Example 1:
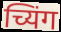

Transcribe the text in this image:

च्यिंग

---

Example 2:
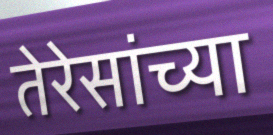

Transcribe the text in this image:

तेरेसांच्या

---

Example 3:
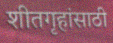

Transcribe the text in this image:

शीतगृहांसाठी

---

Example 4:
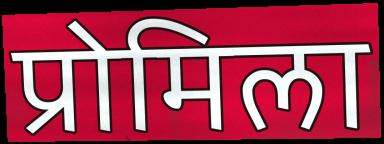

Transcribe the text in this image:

प्रोमिला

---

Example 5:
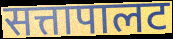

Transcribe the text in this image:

सत्तापालट